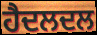
ਹੈਦਲਦਲ